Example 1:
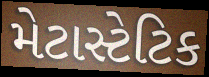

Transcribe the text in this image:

મેટાસ્ટેટિક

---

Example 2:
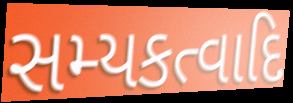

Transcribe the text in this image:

સમ્યકત્વાદિ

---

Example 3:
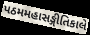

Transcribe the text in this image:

પઠમમહાસઙ્ગીતિકાલે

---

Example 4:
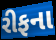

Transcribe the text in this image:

રીફના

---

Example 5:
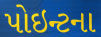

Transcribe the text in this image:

પોઇન્ટના